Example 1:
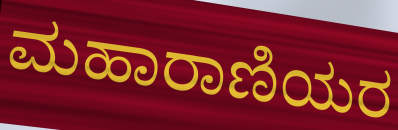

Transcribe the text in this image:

ಮಹಾರಾಣಿಯರ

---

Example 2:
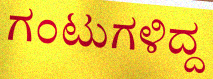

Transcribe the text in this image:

ಗಂಟುಗಳಿದ್ದ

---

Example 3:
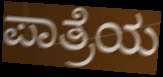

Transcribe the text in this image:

ಪಾತ್ರೆಯ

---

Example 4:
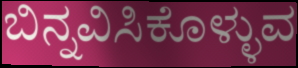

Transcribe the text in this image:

ಬಿನ್ನವಿಸಿಕೊಳ್ಳುವ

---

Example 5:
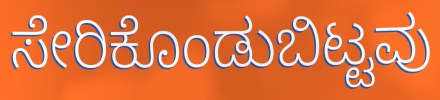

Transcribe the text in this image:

ಸೇರಿಕೊಂಡುಬಿಟ್ಟವು